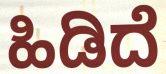
ಹಿಡಿದೆ